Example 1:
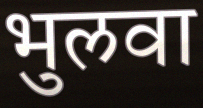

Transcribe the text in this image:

भुलवा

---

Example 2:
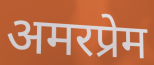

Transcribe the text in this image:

अमरप्रेम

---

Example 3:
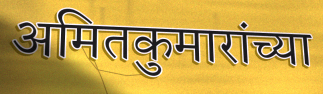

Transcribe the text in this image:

अमितकुमारांच्या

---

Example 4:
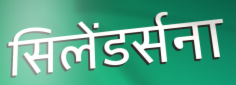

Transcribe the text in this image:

सिलेंडर्सना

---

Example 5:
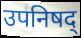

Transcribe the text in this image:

उपनिषद्